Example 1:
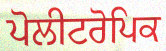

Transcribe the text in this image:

ਪੋਲੀਟਰੋਪਿਕ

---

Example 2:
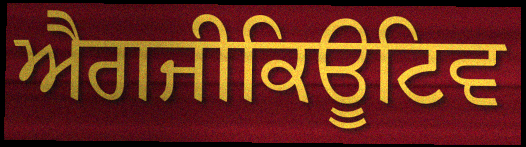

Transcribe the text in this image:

ਐਗਜੀਕਿਊਟਿਵ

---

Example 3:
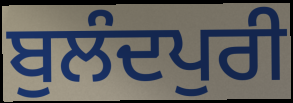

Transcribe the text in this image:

ਬੁਲੰਦਪੁਰੀ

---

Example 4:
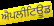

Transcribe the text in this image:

ਐਪਲੀਟਿਊਡ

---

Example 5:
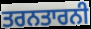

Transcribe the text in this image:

ਤਰਨਤਾਰਨੀ